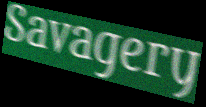
Savagery